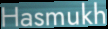
Hasmukh